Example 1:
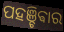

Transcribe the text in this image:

ପହଞ୍ଚିଵାର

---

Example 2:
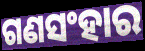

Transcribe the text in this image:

ଗଣସଂହାର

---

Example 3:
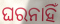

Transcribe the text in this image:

ଘରନାହିଁ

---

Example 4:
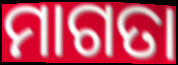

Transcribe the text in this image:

ମାଗତା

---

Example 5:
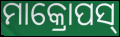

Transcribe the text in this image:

ମାକ୍ରୋପସ୍